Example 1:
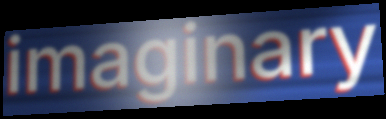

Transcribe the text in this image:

imaginary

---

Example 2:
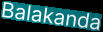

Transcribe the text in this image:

Balakanda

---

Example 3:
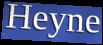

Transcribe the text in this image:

Heyne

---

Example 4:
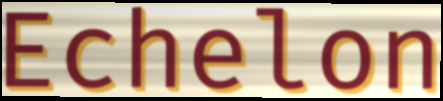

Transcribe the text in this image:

Echelon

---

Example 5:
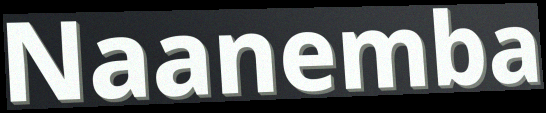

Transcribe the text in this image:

Naanemba